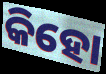
କିହୋ